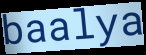
baalya